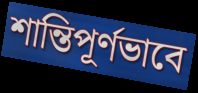
শান্তিপূর্ণভাবে